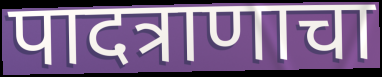
पादत्राणाचा